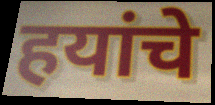
हयांचे